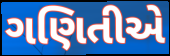
ગણિતીએ